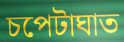
চপেটাঘাত